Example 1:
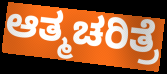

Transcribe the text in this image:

ಆತ್ಮಚರಿತ್ರೆ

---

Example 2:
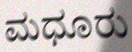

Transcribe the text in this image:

ಮಧೂರು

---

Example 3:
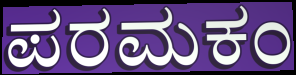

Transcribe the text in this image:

ಪರಮಕಂ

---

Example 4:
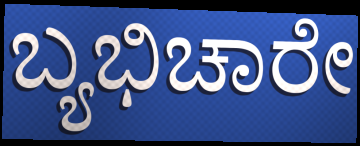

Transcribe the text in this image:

ಬ್ಯಭಿಚಾರೇ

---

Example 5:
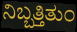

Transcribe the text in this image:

ನಿಬ್ಬತ್ತಿತುಂ